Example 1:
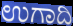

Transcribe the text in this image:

ಉಗಾದಿ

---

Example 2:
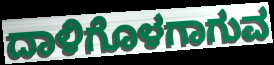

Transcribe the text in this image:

ದಾಳಿಗೊಳಗಾಗುವ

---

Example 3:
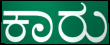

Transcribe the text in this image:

ಕಾರು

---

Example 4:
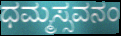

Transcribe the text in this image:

ಧಮ್ಮಸ್ಸವನಂ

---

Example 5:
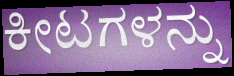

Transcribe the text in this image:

ಕೀಟಗಳನ್ನು